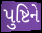
પુષ્ટિને